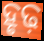
ହୃଢ଼